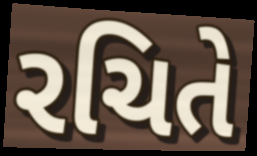
રચિતે